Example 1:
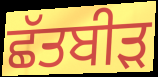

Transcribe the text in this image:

ਛੱਤਬੀੜ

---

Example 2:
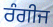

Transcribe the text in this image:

ਰੰਗੀਜ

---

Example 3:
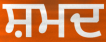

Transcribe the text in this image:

ਸ਼ਮਦ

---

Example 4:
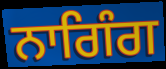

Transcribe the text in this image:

ਨਾਗਿੰਗ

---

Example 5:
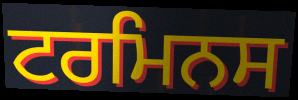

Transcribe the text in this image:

ਟਰਮਿਨਸ